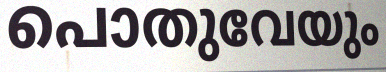
പൊതുവേയും